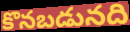
కొనబడునది